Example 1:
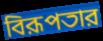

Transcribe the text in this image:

বিরূপতার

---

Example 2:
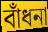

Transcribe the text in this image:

বাঁধনা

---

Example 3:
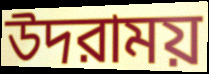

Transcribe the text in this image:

উদরাময়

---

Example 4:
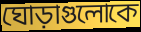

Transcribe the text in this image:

ঘোড়াগুলোকে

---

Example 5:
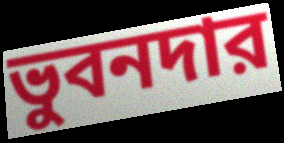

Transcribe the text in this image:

ভুবনদার